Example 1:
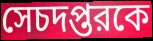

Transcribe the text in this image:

সেচদপ্তরকে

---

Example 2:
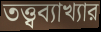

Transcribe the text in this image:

তত্ত্বব্যাখ্যার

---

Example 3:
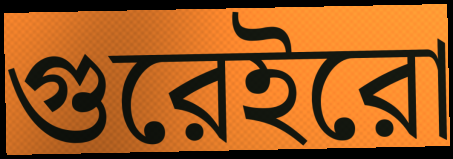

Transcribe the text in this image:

গুরেইরো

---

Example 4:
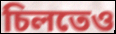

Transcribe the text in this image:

চিলতেও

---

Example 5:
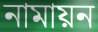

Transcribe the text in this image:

নামায়ন